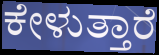
ಕೇಳುತ್ತಾರೆ